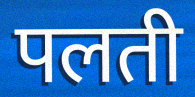
पलती